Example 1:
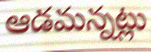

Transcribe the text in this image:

ఆడమన్నట్లు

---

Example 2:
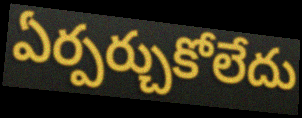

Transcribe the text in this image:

ఏర్పర్చుకోలేదు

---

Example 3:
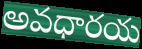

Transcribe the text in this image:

అవధారయ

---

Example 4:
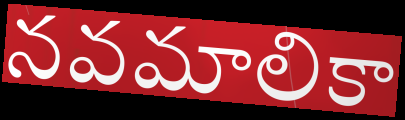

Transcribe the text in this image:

నవమాలికా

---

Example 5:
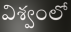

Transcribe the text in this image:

విశ్వంలో